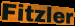
Fitzler